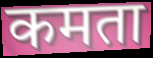
कमता